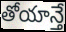
తోయాన్తే